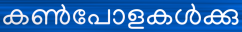
കൺപോളകൾക്കു